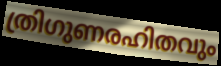
ത്രിഗുണരഹിതവും